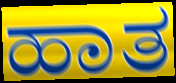
ಹಾತ